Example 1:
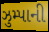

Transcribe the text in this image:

ઝુમ્પાની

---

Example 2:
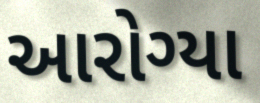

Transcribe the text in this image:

આરોગ્યા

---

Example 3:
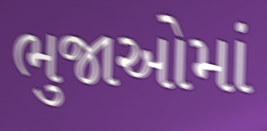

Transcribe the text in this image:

ભુજાઓમાં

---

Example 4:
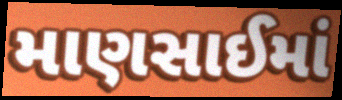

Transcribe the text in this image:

માણસાઈમાં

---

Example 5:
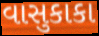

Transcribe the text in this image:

વાસુકાકા